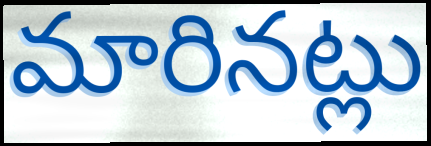
మారినట్లు